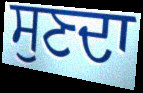
ਸੁਣਦਾ